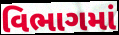
વિભાગમાં